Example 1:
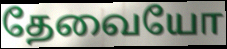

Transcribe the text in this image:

தேவையோ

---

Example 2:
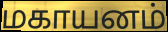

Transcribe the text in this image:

மகாயனம்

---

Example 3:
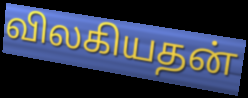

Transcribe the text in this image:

விலகியதன்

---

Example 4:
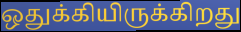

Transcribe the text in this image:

ஒதுக்கியிருக்கிறது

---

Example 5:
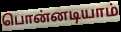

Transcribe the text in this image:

பொன்னடியாம்